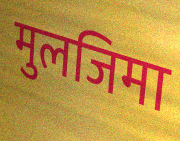
मुलजिमा